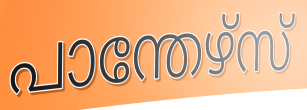
പാന്തേഴ്സ്